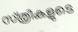
സ്‌ത്രീകളുടെ